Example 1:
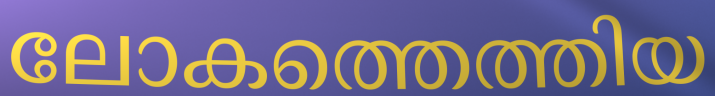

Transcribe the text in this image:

ലോകത്തെത്തിയ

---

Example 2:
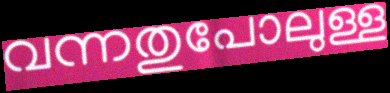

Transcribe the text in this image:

വന്നതുപോലുള്ള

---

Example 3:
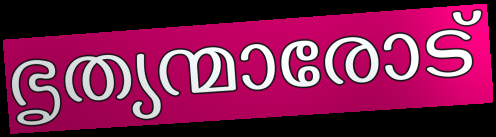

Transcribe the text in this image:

ഭൃത്യന്മാരോട്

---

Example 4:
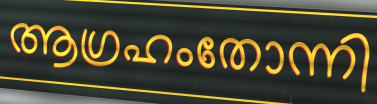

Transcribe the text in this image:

ആഗ്രഹംതോന്നി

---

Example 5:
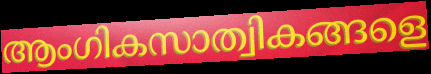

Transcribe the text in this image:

ആംഗികസാത്വികങ്ങളെ